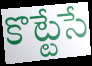
కొట్టేసే